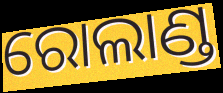
ରୋଲାଣ୍ଡ